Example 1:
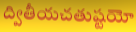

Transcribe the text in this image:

ద్వితీయచతుష్టయో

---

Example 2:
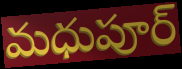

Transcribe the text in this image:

మధుపూర్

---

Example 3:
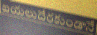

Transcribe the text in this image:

బయలుదేరకుండానే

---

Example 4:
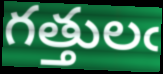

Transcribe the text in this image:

గత్తులఁ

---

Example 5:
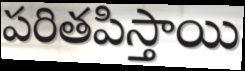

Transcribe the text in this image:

పరితపిస్తాయి